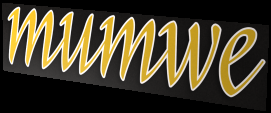
mumwe